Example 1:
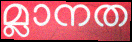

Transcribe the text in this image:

മ്ലാനത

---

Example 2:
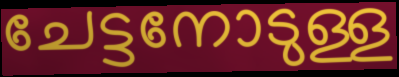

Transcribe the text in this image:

ചേട്ടനോടുള്ള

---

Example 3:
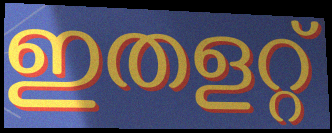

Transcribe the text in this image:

ഇതളറ്റ്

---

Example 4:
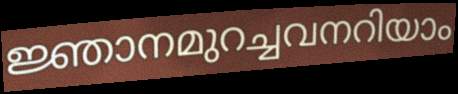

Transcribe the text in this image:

ജ്ഞാനമുറച്ചവനറിയാം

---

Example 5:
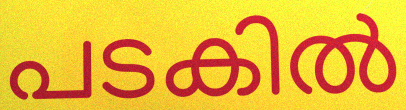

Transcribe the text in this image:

പടകിൽ